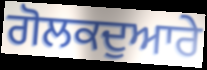
ਗੋਲਕਦੁਆਰੇ